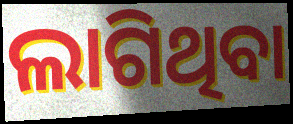
ଲାଗିଥିବା